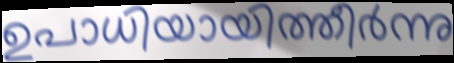
ഉപാധിയായിത്തീർന്നു